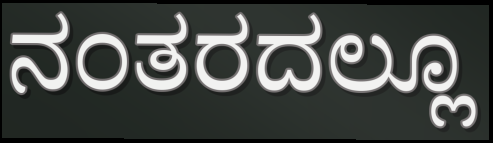
ನಂತರದಲ್ಲೂ